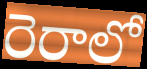
రెరాలో